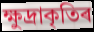
ক্ষুদ্ৰাকৃতিৰ